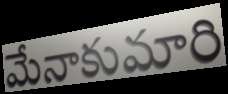
మేనాకుమారి